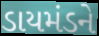
ડાયમંડને